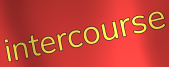
intercourse